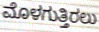
ಮೊಳಗುತ್ತಿರಲು